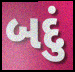
બદું